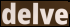
delve